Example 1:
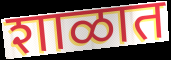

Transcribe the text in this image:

शाळात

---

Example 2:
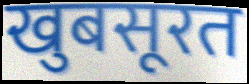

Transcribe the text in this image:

खुबसूरत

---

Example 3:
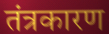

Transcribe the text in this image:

तंत्रकारण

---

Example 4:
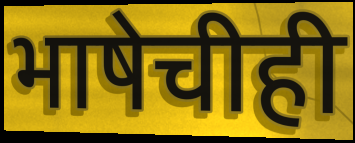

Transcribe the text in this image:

भाषेचीही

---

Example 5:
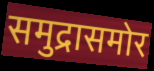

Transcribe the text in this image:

समुद्रासमोर